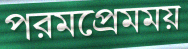
পরমপ্রেমময়